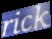
rick